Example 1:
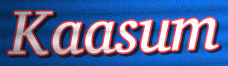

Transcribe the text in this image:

Kaasum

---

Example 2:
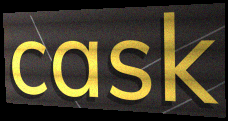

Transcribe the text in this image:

cask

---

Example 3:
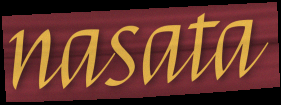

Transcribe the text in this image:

nasata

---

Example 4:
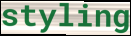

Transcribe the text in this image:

styling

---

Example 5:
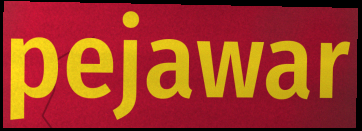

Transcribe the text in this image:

pejawar